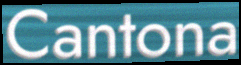
Cantona